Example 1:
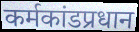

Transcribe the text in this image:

कर्मकांडप्रधान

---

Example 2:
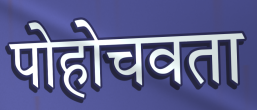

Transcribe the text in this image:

पोहोचवता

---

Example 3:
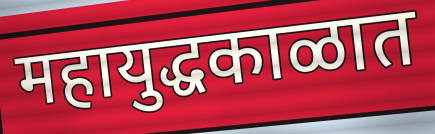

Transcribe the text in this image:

महायुद्धकाळात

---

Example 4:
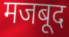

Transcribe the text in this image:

मजबूद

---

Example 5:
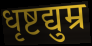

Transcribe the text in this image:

धृष्टद्युम्र